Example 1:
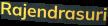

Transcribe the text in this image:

Rajendrasuri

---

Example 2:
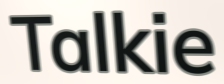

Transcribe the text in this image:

Talkie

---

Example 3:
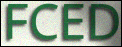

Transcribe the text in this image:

FCED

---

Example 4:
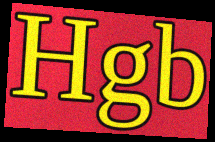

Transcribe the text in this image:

Hgb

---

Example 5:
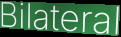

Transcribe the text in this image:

Bilateral